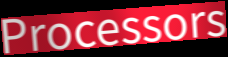
Processors